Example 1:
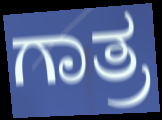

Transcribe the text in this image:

ಗಾತ್ರ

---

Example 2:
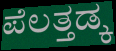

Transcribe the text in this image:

ಪೆಲತ್ತಡ್ಕ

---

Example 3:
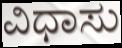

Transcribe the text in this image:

ವಿಧಾಸು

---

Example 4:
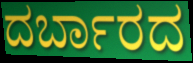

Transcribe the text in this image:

ದರ್ಬಾರದ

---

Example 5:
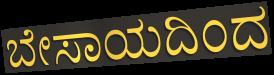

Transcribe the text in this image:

ಬೇಸಾಯದಿಂದ